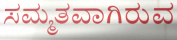
ಸಮ್ಮತವಾಗಿರುವ